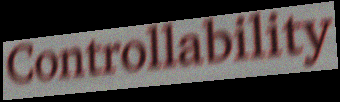
Controllability